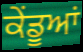
ਕੇਂਡੂਆਂ